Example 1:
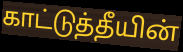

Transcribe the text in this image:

காட்டுத்தீயின்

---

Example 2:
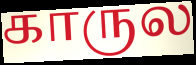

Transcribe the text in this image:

காருல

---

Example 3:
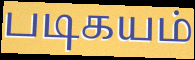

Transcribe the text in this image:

படிகயம்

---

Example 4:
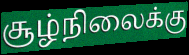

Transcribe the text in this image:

சூழ்நிலைக்கு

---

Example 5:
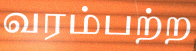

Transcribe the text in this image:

வரம்பற்ற